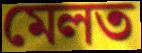
মেলত